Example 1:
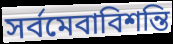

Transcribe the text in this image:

সর্বমেবাবিশন্তি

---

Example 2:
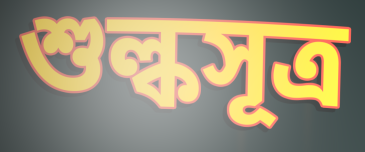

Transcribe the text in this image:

শুল্কসূত্র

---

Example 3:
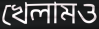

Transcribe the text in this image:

খেলামও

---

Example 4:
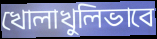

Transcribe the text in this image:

খোলাখুলিভাবে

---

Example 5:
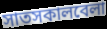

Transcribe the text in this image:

সাতসকালবেলা